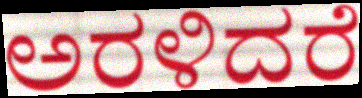
ಅರಳಿದರೆ